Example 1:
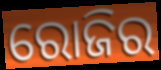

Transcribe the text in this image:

ରୋଜିର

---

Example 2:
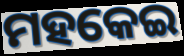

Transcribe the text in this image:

ମହକେଇ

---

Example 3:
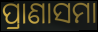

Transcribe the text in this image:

ପ୍ରାଣାସମା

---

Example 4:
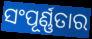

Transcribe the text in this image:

ସଂପୂର୍ଣ୍ଣତାର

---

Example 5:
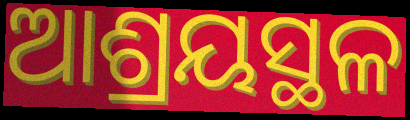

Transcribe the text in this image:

ଆଶ୍ରୟସ୍ଥଳ